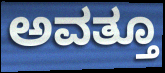
ಅವತ್ತೂ